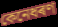
কেনেধৰণ